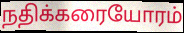
நதிக்கரையோரம்